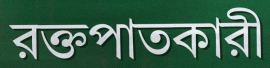
রক্তপাতকারী